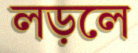
লড়লে